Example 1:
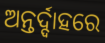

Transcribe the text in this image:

ଅନ୍ତର୍ଦ୍ଦାହରେ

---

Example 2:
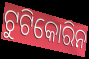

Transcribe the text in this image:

ଟୁଟିକୋରିନ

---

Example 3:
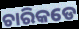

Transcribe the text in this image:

ଚାରିକଡେ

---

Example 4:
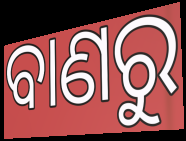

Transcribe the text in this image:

ବାଣରୁ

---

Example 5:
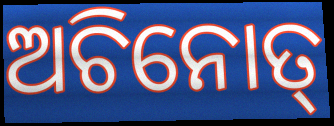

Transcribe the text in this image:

ଅଚିନୋତ୍